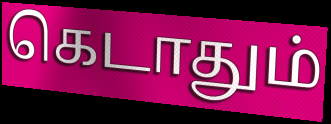
கெடாதும்